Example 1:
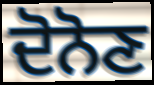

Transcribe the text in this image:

ਦੋਨੋਣ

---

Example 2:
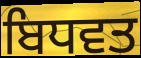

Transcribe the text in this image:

ਬਿਧਵਤ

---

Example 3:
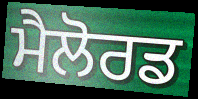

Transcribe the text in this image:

ਮੈਲੋਰਡ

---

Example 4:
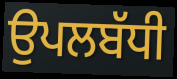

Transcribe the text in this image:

ਉਪਲਬੱਧੀ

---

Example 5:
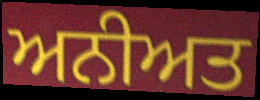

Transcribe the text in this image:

ਅਨੀਅਤ